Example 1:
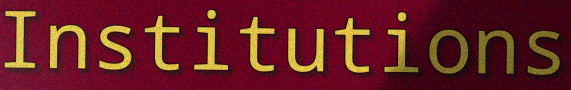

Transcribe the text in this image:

Institutions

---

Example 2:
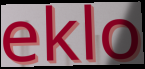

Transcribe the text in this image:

eklo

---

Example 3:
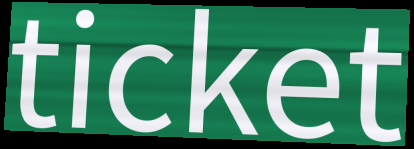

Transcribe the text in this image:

ticket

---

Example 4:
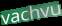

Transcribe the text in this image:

vachvu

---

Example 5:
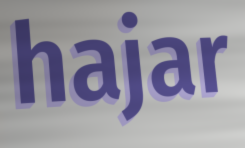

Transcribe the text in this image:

hajar